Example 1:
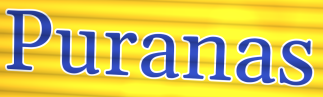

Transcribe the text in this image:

Puranas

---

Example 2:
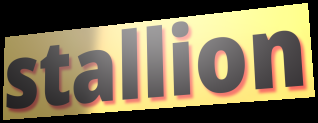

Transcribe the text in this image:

stallion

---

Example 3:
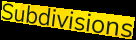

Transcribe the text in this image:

Subdivisions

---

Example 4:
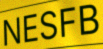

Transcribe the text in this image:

NESFB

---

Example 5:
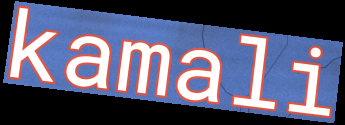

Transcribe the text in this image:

kamali